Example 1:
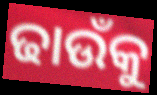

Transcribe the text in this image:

ଢାଉଁକୁ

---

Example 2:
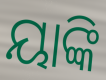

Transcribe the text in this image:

ୟାଙ୍କି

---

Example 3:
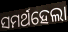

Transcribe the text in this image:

ସମର୍ଥହେଲା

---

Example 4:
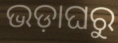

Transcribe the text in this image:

ଭଡ଼ାଘରୁ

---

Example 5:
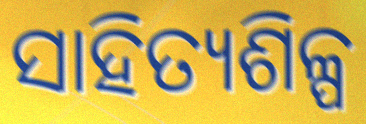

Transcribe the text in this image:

ସାହିତ୍ୟଶିଳ୍ପ